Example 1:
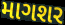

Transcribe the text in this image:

માગશર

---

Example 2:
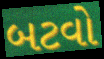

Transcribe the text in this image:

બટવો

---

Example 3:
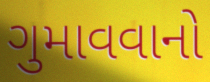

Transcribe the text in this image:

ગુમાવવાનો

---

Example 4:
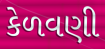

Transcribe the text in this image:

કેળવણી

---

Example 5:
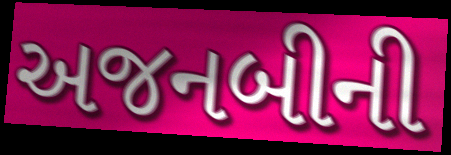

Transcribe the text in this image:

અજનબીની